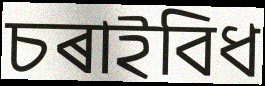
চৰাইবিধ